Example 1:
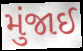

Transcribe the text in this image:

મુંજાઈ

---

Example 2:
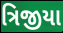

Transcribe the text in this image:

ત્રિજીયા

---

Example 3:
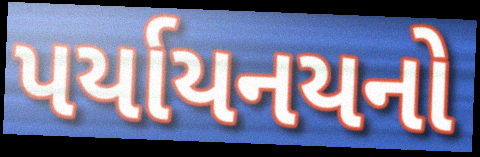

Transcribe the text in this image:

પર્યાયનયનો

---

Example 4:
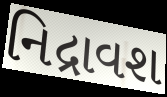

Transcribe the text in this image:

નિદ્રાવશ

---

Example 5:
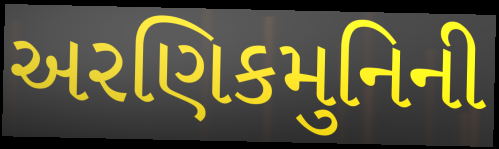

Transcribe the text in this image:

અરણિકમુનિની